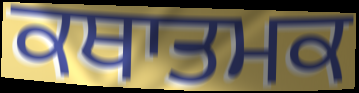
ਕਥਾਤਮਕ